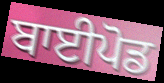
ਬਾਈਪੋਡ